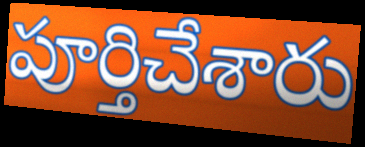
పూర్తిచేశారు